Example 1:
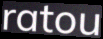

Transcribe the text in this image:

ratou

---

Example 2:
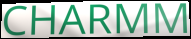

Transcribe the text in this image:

CHARMM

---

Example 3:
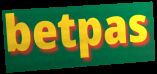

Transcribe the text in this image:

betpas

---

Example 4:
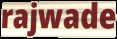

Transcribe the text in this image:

rajwade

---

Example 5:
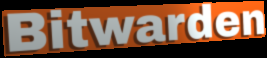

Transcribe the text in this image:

Bitwarden